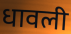
धावली